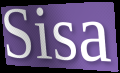
Sisa